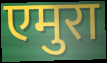
एमुरा